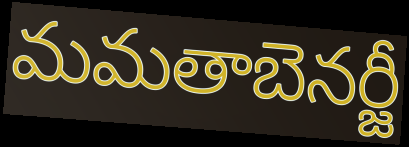
మమతాబెనర్జీ